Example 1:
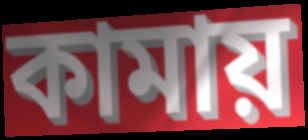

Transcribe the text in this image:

কামায়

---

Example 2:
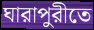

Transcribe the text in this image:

ঘারাপুরীতে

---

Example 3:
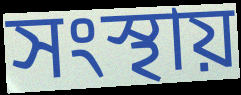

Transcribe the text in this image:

সংস্থায়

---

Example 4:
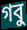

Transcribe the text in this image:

গবু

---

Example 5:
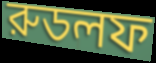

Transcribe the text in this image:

রুডলফ